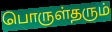
பொருள்தரும்